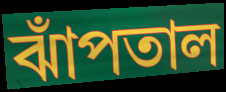
ঝাঁপতাল